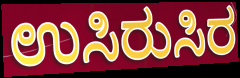
ಉಸಿರುಸಿರ